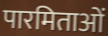
पारमिताओं